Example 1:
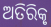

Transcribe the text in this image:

ଅତିରିକୃ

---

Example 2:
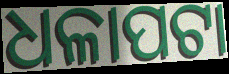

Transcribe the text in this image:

ଧଳାପଟା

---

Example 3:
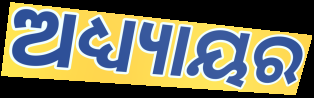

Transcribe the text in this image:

ଅଧ୍ୟ୍ୟାୟର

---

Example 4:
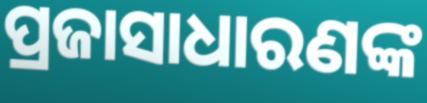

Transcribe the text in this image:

ପ୍ରଜାସାଧାରଣଙ୍କ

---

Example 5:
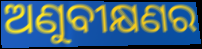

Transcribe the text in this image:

ଅଣୁବୀକ୍ଷଣର